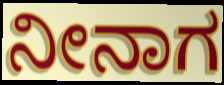
ನೀನಾಗ